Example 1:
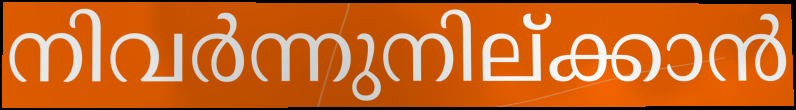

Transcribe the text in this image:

നിവർന്നുനില്ക്കാൻ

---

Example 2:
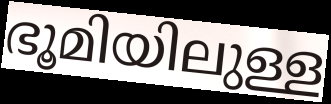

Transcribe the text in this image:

ഭൂമിയിലുള്ള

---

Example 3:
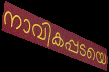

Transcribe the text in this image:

നാവികപ്പടയെ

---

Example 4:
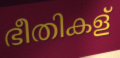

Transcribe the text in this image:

ഭീതികള്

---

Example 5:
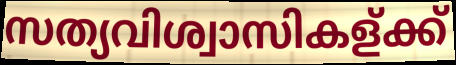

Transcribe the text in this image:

സത്യവിശ്വാസികള്ക്ക്